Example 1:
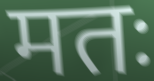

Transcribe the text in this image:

मतः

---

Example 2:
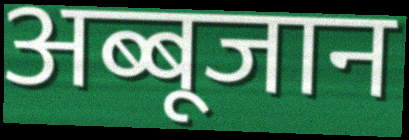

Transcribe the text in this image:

अब्बूजान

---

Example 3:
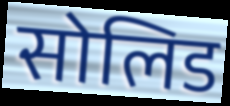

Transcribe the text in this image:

सोलिड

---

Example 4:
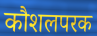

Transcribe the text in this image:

कौशलपरक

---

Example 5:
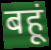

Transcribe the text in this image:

बहूं